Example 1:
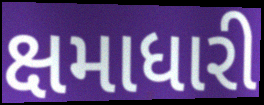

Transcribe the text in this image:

ક્ષમાધારી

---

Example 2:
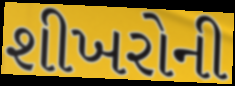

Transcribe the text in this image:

શીખરોની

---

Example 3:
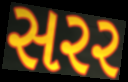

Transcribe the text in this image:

સરર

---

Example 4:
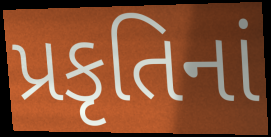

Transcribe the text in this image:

પ્રકૃતિનાં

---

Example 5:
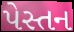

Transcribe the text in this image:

પેસ્તન